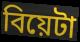
বিয়েটা